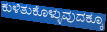
ಕುಳಿತುಕೊಳ್ಳುವುದಕ್ಕೂ